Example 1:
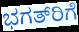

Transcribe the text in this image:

ಭಗತ್‍ರಿಗೆ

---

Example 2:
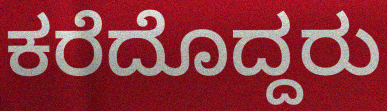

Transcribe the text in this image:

ಕರೆದೊದ್ದರು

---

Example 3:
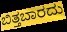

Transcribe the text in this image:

ಬಿತ್ತಬಾರದು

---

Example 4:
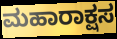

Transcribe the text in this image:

ಮಹಾರಾಕ್ಷಸ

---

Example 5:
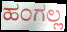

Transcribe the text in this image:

ಹಂಗಲ್ಲ